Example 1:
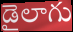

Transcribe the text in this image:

డైలాగు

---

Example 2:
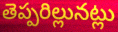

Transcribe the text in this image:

తెప్పరిల్లునట్లు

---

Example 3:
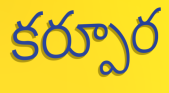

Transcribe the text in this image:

కర్పూర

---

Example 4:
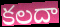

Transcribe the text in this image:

కలదా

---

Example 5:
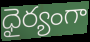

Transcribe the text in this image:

ధైర్యంగా